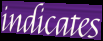
indicates